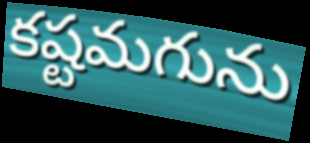
కష్టమగును